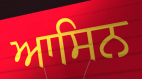
ਆਸਿਨ